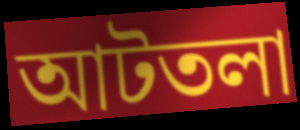
আটতলা